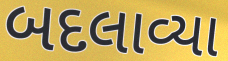
બદલાવ્યા